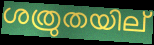
ശത്രുതയില്